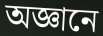
অজ্ঞানে